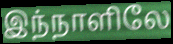
இந்நாளிலே